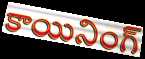
కాయినింగ్